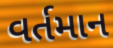
વર્તમાન